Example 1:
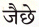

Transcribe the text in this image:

जैछे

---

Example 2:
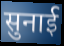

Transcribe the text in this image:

सुनाई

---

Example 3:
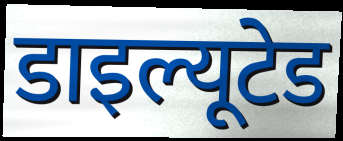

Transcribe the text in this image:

डाइल्यूटेड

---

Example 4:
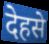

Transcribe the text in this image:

देहसे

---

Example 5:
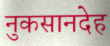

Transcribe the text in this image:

नुकसानदेह